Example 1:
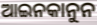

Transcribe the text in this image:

ଆଇନକାନୁନ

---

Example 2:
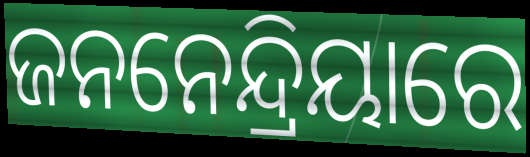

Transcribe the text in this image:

ଜନନେନ୍ଦ୍ରିୟାରେ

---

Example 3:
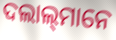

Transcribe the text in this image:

ଦଲାଲ୍‍ମାନେ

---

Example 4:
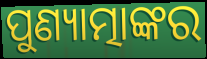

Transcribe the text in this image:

ପୁଣ୍ୟାତ୍ମାଙ୍କର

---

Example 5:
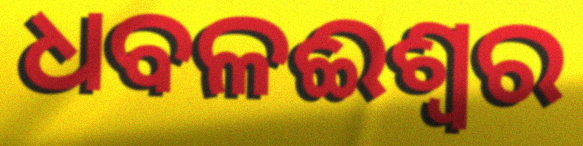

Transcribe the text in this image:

ଧବଳଈଶ୍ବର